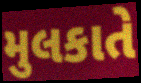
મુલકાતે